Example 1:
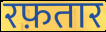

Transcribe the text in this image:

रफ़तार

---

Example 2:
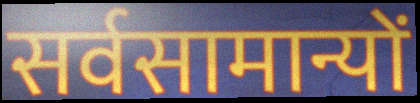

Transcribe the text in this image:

सर्वसामान्यों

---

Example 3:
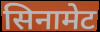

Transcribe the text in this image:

सिनामेट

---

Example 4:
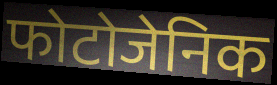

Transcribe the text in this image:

फोटोजेनिक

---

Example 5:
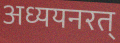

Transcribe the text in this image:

अध्ययनरत्